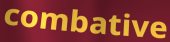
combative